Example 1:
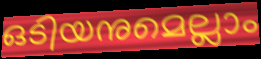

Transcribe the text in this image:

ഒടിയനുമെല്ലാം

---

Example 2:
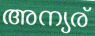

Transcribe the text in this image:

അന്യര്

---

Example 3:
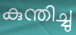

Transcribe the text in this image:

കുന്തിച്ചു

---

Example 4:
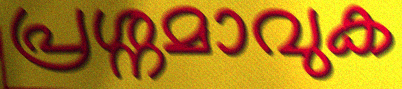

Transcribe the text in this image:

പ്രശ്നമാവുക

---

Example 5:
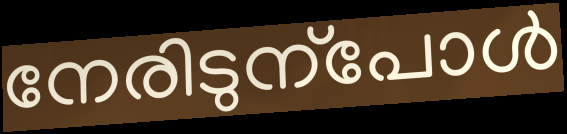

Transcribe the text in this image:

നേരിടുന്പോൾ